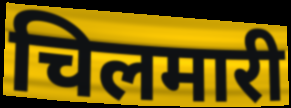
चिलमारी